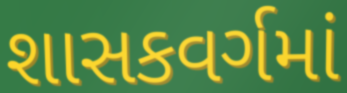
શાસકવર્ગમાં